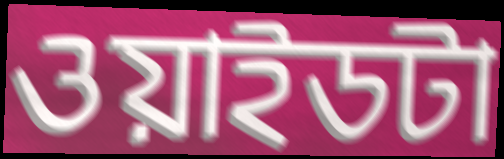
ওয়াইডটা